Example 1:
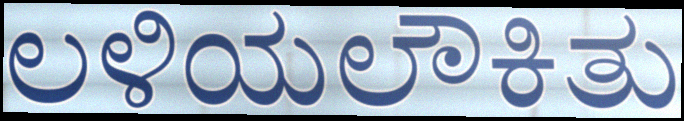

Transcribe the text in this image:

ಲಳಿಯಲೌಕಿತು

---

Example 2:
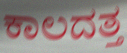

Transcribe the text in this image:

ಕಾಲದತ್ತ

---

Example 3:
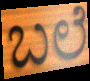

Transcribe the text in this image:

ಬಲೆ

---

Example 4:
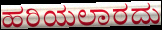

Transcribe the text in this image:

ಹರಿಯಲಾರದು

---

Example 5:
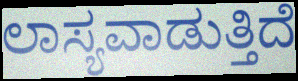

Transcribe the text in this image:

ಲಾಸ್ಯವಾಡುತ್ತಿದೆ